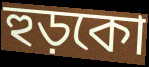
হুড়কো